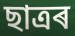
ছাত্ৰৰ